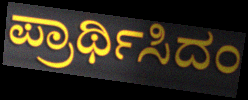
ಪ್ರಾರ್ಥಿಸಿದಂ